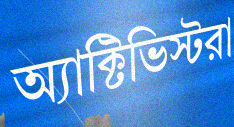
অ্যাক্টিভিস্টরা